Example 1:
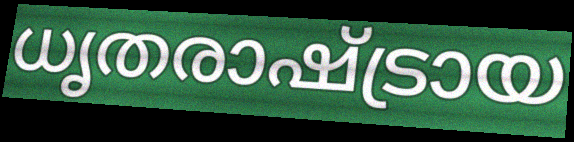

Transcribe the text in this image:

ധൃതരാഷ്ട്രായ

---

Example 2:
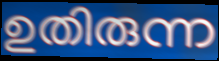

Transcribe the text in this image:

ഉതിരുന്ന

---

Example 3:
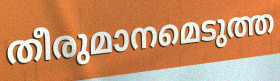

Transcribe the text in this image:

തീരുമാനമെടുത്ത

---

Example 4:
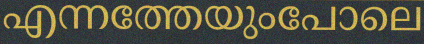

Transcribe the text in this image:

എന്നത്തേയുംപോലെ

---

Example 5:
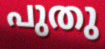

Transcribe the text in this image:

പുതു